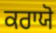
ਕਰਾਯੋ